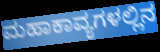
ಮಹಾಕಾವ್ಯಗಳಲ್ಲಿನ